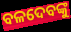
ବଳଦେବଙ୍କୁ